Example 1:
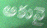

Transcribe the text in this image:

ఆకునై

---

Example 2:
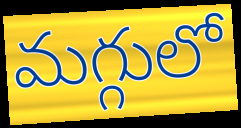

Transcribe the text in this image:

మగ్గులో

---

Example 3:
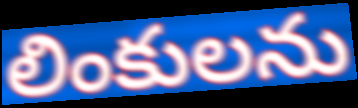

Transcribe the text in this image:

లింకులను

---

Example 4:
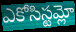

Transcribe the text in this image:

ఎకోసిస్టమ్లో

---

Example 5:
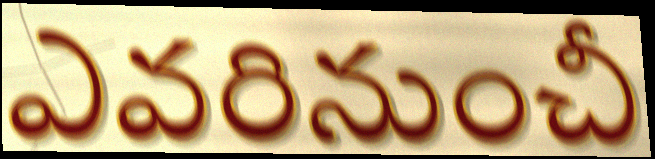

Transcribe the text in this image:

ఎవరినుంచీ